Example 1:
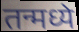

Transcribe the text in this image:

तन्मध्ये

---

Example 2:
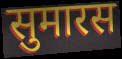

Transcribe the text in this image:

सुमारस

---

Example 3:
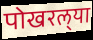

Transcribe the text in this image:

पोखरल्या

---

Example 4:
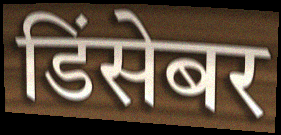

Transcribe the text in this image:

डिंसेबर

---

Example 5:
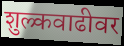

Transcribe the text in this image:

शुल्कवाढीवर